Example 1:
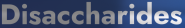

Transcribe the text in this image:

Disaccharides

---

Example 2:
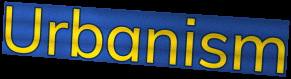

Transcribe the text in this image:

Urbanism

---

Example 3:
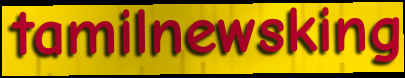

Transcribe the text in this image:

tamilnewsking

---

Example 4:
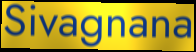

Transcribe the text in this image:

Sivagnana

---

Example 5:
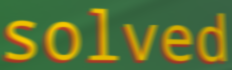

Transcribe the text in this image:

solved